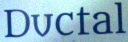
Ductal